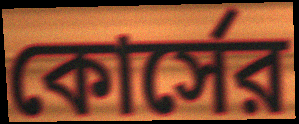
কোর্সের